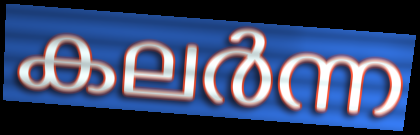
കലർന്ന